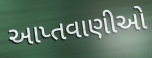
આપ્તવાણીઓ